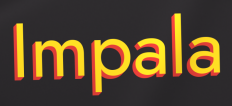
Impala